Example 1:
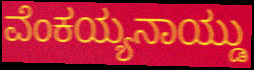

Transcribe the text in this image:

ವೆಂಕಯ್ಯನಾಯ್ಡು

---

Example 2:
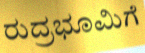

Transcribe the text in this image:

ರುದ್ರಭೂಮಿಗೆ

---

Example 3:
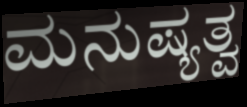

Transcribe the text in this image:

ಮನುಷ್ಯತ್ವ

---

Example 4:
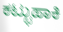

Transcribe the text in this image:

ಕಟ್ಟುಹಾಕಿ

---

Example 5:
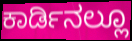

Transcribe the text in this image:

ಕಾರ್ಡಿನಲ್ಲೂ